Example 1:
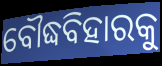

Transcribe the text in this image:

ବୌଦ୍ଧବିହାରକୁ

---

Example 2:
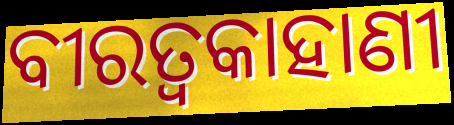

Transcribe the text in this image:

ବୀରତ୍ୱକାହାଣୀ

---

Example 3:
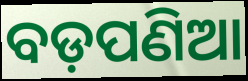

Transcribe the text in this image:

ବଡ଼ପଣିଆ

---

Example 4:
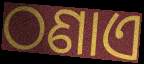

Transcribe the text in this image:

ଠଣାଏ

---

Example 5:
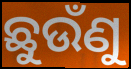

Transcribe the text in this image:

ଛୁଉଁଣୁ